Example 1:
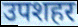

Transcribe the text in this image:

उपशहर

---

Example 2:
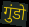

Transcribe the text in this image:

गुंडो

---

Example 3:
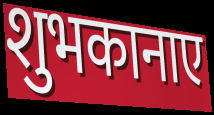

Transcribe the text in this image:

शुभकानाए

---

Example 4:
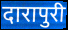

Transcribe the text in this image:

दारापुरी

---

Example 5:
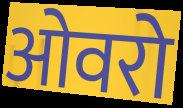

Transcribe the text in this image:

ओवरो